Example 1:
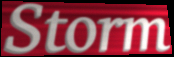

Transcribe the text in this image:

Storm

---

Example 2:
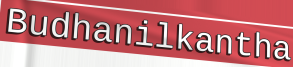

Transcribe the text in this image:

Budhanilkantha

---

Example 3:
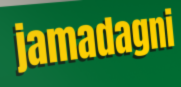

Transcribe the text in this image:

jamadagni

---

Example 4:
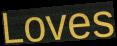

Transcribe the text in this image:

Loves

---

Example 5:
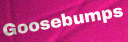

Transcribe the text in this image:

Goosebumps